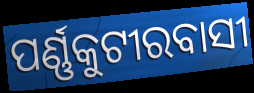
ପର୍ଣ୍ଣକୁଟୀରବାସୀ